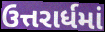
ઉત્તરાર્ધમાં